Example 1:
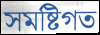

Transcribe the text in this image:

সমষ্টিগত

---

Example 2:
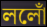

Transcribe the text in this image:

ললোঁ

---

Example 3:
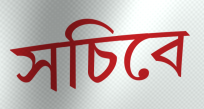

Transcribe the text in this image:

সচিবে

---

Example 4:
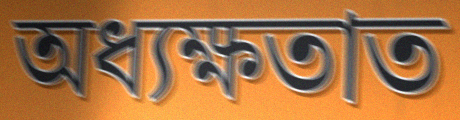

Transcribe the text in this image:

অধ্যক্ষতাত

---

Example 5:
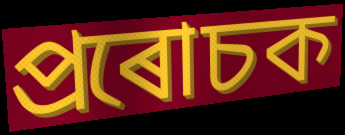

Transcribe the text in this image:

প্ৰৰোচক